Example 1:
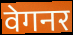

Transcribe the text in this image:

वेगनर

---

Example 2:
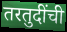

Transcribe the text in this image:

तरतुदींची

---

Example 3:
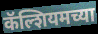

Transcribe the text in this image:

कॅल्शियमच्या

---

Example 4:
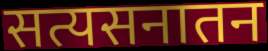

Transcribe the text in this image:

सत्यसनातन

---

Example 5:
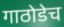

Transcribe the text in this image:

गाठोडेच